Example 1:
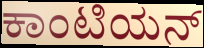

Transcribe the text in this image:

ಕಾಂಟಿಯನ್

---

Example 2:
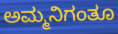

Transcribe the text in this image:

ಅಮ್ಮನಿಗಂತೂ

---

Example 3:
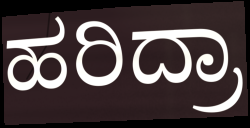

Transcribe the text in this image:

ಹರಿದ್ರಾ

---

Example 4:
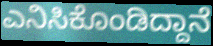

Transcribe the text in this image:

ಎನಿಸಿಕೊಂಡಿದ್ದಾನೆ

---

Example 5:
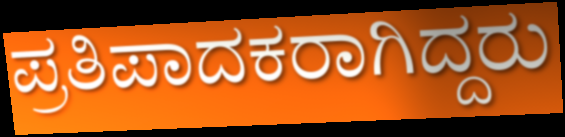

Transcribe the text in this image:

ಪ್ರತಿಪಾದಕರಾಗಿದ್ದರು